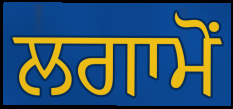
ਲਗਾਮੋਂ